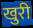
खुरी